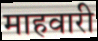
माहवारी